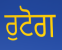
ਰੁਟੋਗ